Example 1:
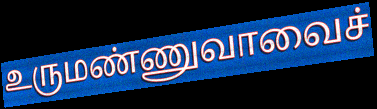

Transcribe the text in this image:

உருமண்ணுவாவைச்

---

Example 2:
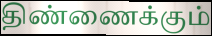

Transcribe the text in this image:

திண்ணைக்கும்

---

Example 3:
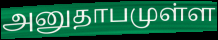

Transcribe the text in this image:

அனுதாபமுள்ள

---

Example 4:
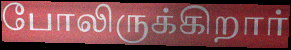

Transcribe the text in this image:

போலிருக்கிறார்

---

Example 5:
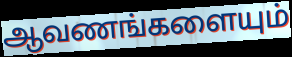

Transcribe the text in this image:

ஆவணங்களையும்